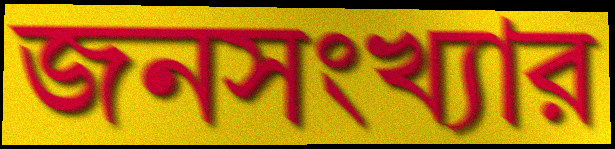
জনসংখ্যার